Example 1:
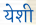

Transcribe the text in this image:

येशी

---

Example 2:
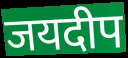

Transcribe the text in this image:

जयदीप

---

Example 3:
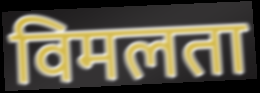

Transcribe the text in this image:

विमलता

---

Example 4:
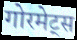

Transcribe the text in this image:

गोरमेट्स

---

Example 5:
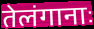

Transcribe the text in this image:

तेलंगानाः